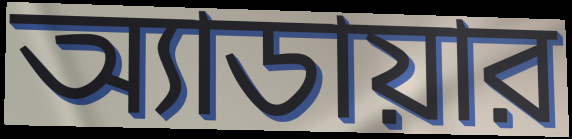
অ্যাডায়ার